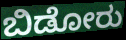
ಬಿಡೋರು